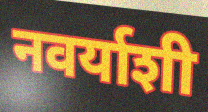
नवर्याशी